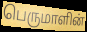
பெருமாளின்